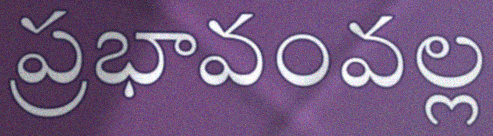
ప్రభావంవల్ల